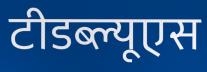
टीडब्ल्यूएस